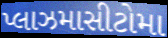
પ્લાઝમાસીટોમા